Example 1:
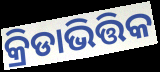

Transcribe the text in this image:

କ୍ରିଡାଭିତ୍ତିକ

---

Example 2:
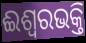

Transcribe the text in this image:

ଈଶ୍ୱରଭକ୍ତି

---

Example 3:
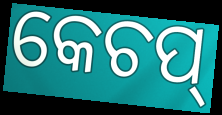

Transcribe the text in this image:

କେଚପ୍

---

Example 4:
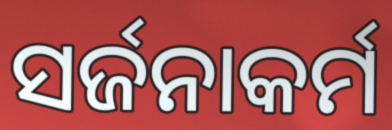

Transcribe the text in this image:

ସର୍ଜନାକର୍ମ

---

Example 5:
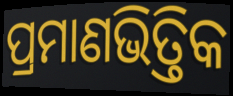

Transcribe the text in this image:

ପ୍ରମାଣଭିତ୍ତିକ